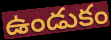
ఉండుకం